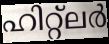
ഹിറ്റ്ലർ